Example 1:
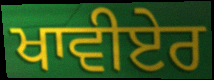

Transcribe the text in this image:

ਖਾਵੀਏਰ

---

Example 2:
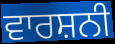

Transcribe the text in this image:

ਵਾਰਸ਼ਨੀ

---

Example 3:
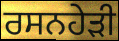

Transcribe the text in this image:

ਰਸਨਹੇੜੀ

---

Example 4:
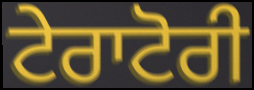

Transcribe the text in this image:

ਟੇਰਾਟੋਰੀ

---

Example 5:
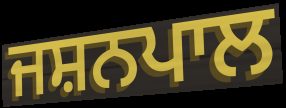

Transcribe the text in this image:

ਜਸ਼ਨਪਾਲ